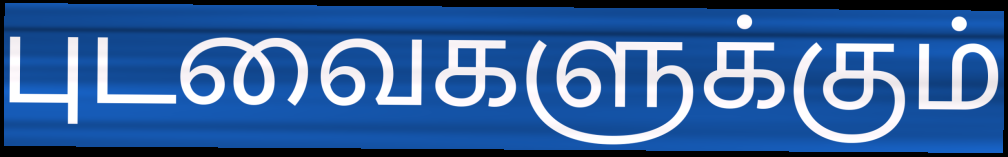
புடவைகளுக்கும்